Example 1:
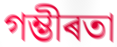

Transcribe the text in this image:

গম্ভীৰতা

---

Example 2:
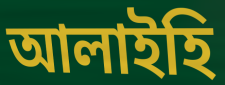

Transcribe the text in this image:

আলাইহি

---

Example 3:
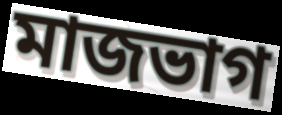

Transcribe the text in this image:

মাজভাগ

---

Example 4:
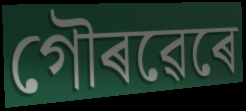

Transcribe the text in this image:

গৌৰৱেৰে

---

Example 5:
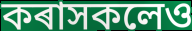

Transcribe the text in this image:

কৰাসকলেও